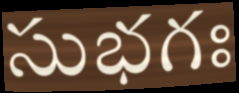
సుభగః